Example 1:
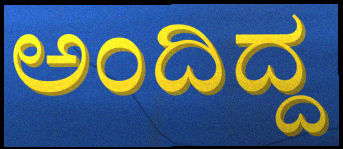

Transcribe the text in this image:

ಅಂದಿದ್ದ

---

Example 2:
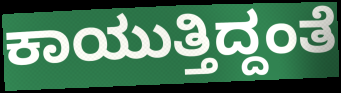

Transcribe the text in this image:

ಕಾಯುತ್ತಿದ್ದಂತೆ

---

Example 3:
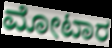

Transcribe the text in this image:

ಮೋಟಾರ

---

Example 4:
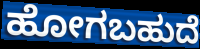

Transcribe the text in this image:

ಹೋಗಬಹುದೆ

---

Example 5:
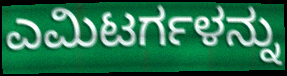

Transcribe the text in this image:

ಎಮಿಟರ್ಗಳನ್ನು